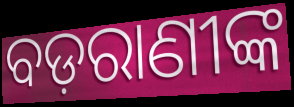
ବଡ଼ରାଣୀଙ୍କ